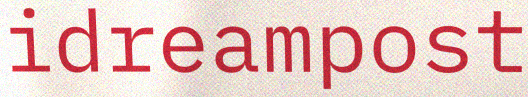
idreampost